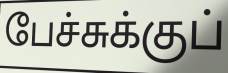
பேச்சுக்குப்